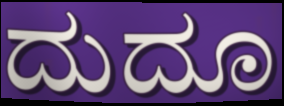
ದುದೂ